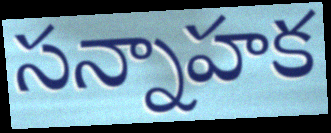
సన్నాహక